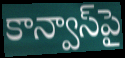
కాన్వాస్‌పై